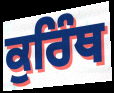
ਕੁਰਿੰਥ